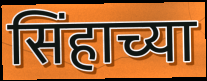
सिंहाच्या